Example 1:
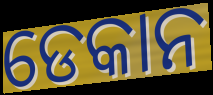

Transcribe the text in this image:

ଡେକାନ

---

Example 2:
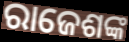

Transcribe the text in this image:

ରାଜେଶଙ୍କ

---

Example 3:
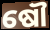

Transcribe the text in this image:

ଷୌ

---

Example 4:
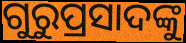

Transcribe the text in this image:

ଗୁରୁପ୍ରସାଦଙ୍କୁ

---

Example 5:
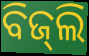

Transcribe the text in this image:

ବିଜ୍‍ଲି